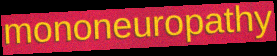
mononeuropathy